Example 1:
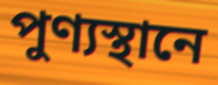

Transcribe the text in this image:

পুণ্যস্থানে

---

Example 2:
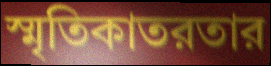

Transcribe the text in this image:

স্মৃতিকাতরতার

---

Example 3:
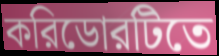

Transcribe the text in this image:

করিডোরটিতে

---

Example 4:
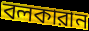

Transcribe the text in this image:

বলকারান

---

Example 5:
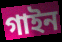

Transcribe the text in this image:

গাইন